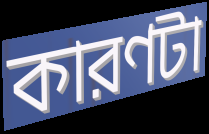
কারণটা